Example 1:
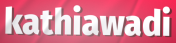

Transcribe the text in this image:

kathiawadi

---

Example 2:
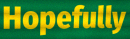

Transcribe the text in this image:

Hopefully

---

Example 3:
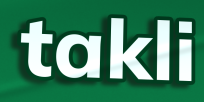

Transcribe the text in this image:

takli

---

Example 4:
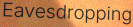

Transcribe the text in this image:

Eavesdropping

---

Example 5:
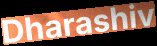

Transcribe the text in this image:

Dharashiv